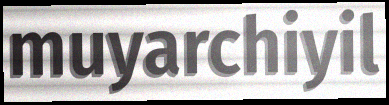
muyarchiyil